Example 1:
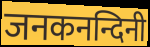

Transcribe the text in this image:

जनकनन्दिनी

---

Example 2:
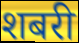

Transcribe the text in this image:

शबरी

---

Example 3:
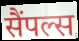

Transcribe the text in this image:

सैंपल्स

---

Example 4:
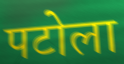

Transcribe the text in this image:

पटोला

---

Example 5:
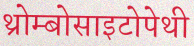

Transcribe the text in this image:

थ्रोम्बोसाइटोपेथी